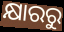
କ୍ଷାରରୁ